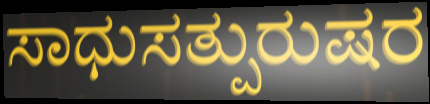
ಸಾಧುಸತ್ಪುರುಷರ